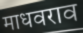
माधवराव